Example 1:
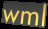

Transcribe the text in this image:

wml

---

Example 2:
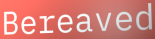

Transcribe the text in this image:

Bereaved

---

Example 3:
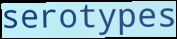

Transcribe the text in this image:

serotypes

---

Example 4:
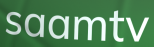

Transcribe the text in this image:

saamtv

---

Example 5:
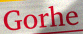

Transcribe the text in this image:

Gorhe